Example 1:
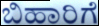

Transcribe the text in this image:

ಬಿಹಾರಿಗೆ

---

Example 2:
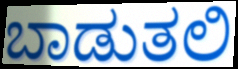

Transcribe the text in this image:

ಬಾಡುತಲಿ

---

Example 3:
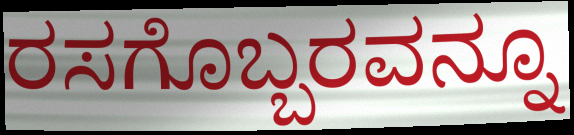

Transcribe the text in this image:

ರಸಗೊಬ್ಬರವನ್ನೂ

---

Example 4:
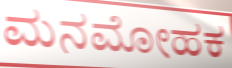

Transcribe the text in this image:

ಮನಮೋಹಕ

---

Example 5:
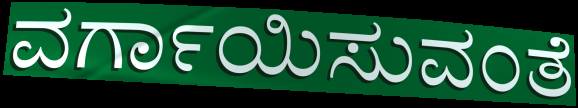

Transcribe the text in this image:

ವರ್ಗಾಯಿಸುವಂತೆ